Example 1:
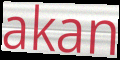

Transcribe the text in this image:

akan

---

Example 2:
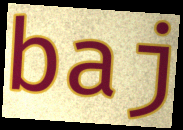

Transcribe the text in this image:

baj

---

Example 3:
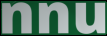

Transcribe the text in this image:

nnu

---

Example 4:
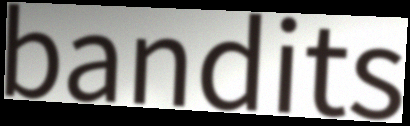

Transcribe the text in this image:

bandits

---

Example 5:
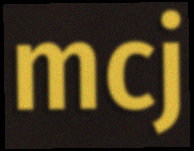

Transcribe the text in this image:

mcj